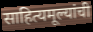
साहित्यमूल्यांची